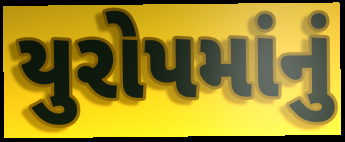
યુરોપમાંનું